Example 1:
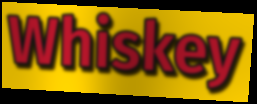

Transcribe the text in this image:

Whiskey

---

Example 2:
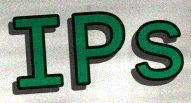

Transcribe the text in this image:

IPs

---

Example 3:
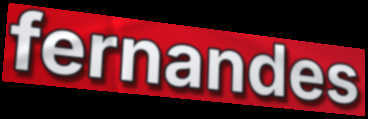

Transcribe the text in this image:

fernandes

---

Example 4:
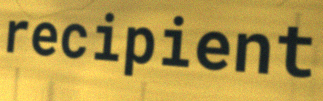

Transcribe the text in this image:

recipient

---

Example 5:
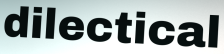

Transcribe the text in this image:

dilectical